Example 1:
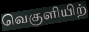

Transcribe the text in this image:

வெகுளியிற்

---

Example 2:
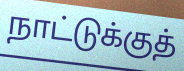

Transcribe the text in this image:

நாட்டுக்குத்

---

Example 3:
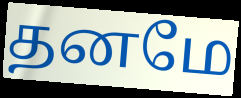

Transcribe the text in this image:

தனமே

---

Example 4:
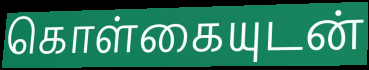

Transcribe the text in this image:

கொள்கையுடன்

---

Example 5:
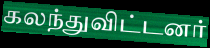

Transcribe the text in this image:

கலந்துவிட்டனர்